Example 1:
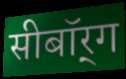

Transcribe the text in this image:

सीबॉर्ग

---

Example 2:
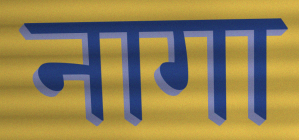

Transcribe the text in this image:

नागा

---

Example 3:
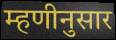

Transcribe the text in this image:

म्हणीनुसार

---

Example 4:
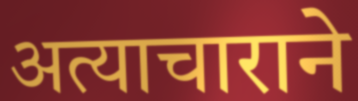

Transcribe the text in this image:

अत्याचाराने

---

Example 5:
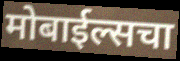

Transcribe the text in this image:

मोबाईल्सचा